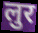
लुर